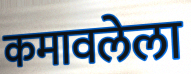
कमावलेला